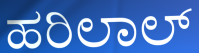
ಹರಿಲಾಲ್